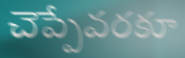
చెప్పేవరకూ